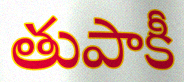
తుపాకీ